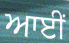
ਆਈਂ